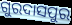
ଗୁରଦାସପୁର